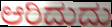
ಆರಿದುದು